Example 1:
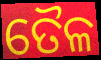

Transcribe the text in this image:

ତୈଳ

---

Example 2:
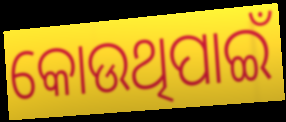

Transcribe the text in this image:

କୋଉଥିପାଇଁ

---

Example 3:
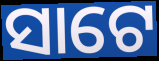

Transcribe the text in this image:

ସାଟେ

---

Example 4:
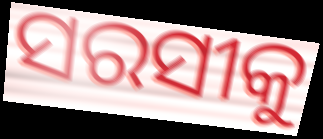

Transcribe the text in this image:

ସରସୀକୁ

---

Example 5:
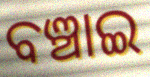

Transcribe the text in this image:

ବଞ୍ଚାଇ